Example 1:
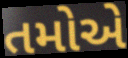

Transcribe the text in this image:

તમોએ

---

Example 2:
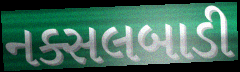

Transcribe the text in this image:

નક્સલબાડી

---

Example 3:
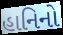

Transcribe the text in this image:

હાનિનો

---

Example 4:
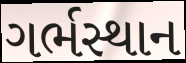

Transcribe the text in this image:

ગર્ભસ્થાન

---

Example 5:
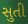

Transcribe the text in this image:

સુતી